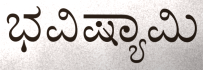
ಭವಿಷ್ಯಾಮಿ